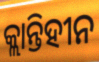
କ୍ଲାନ୍ତିହୀନ